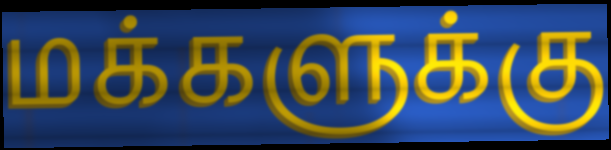
மக்களுக்கு